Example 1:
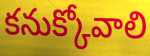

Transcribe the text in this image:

కనుక్కోవాలి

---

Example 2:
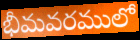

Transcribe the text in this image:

భీమవరములో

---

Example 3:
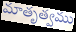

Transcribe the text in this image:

మాతృత్వము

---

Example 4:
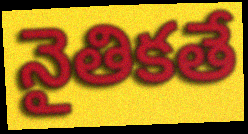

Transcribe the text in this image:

నైతికతే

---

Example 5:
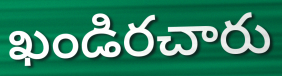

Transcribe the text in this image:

ఖండిరచారు